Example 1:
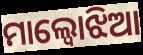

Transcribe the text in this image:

ମାଲ୍ବୋଝିଆ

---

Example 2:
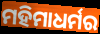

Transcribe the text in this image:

ମହିମାଧର୍ମର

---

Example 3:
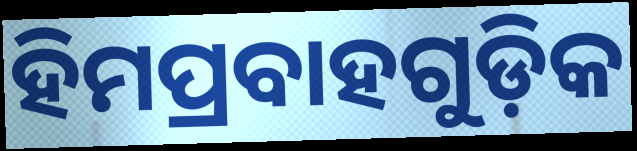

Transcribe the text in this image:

ହିମପ୍ରବାହଗୁଡ଼ିକ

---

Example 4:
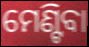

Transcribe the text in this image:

ମେଣ୍ଟିବା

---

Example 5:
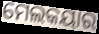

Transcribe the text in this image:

ମେଲକୟାର